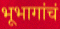
भूभागांचं